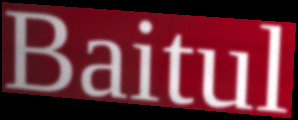
Baitul